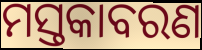
ମସ୍ତକାବରଣ